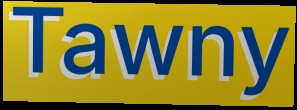
Tawny